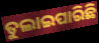
ତୁଲାଇପାରିଛି